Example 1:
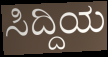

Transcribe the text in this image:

ಸಿದ್ದಿಯ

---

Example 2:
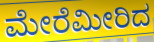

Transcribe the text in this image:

ಮೇರೆಮೀರಿದ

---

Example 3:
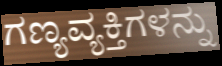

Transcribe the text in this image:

ಗಣ್ಯವ್ಯಕ್ತಿಗಳನ್ನು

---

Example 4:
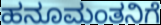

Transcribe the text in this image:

ಹನೂಮಂತನಿಗೆ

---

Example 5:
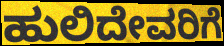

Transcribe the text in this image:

ಹುಲಿದೇವರಿಗೆ